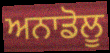
ਅਨਾਡੋਲੂ